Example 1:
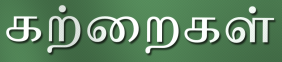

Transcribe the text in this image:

கற்றைகள்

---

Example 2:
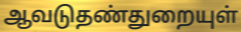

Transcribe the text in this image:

ஆவடுதண்துறையுள்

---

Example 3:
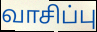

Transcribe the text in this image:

வாசிப்பு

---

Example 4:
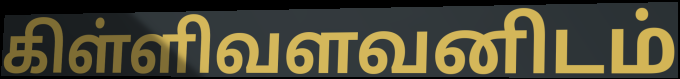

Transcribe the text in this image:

கிள்ளிவளவனிடம்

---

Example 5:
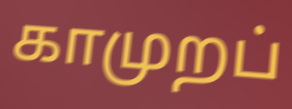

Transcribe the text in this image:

காமுறப்